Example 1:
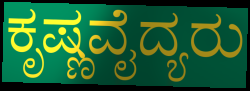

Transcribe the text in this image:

ಕೃಷ್ಣವೈದ್ಯರು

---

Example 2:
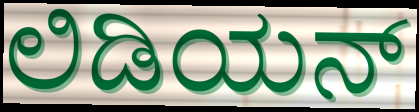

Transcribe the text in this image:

ಲಿಡಿಯನ್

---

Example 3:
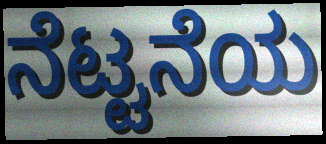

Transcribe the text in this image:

ನೆಟ್ಟನೆಯ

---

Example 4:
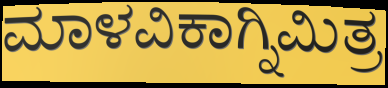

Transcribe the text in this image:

ಮಾಳವಿಕಾಗ್ನಿಮಿತ್ರ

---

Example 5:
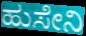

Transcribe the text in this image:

ಹುಸೇನಿ